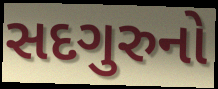
સદગુરુનો